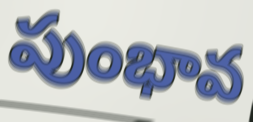
పుంభావ